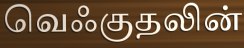
வெஃகுதலின்